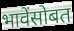
भावेंसोबत